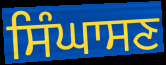
ਸਿੰਘਾਸਣ